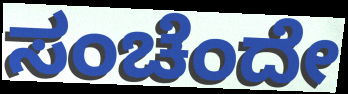
ಸಂಚೆಂದೇ